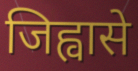
जिह्वासे